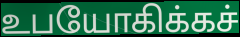
உபயோகிக்கச்